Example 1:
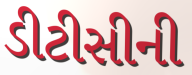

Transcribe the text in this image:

ડીટીસીની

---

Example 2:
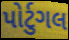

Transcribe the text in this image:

પોર્ટુગલ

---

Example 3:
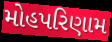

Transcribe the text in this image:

મોહપરિણામ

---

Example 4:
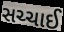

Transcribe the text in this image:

સચ્ચાઈ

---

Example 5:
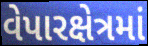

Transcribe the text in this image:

વેપારક્ષેત્રમાં